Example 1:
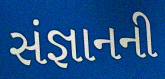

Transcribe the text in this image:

સંજ્ઞાનની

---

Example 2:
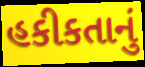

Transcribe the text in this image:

હકીકતાનું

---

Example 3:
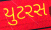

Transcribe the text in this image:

યુટરસ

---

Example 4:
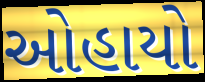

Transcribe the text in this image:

ઓહાયો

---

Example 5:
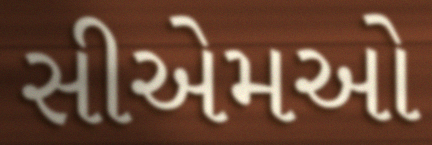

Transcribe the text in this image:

સીએમઓ